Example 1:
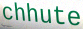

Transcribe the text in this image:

chhute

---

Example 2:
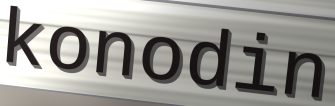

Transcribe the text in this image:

konodin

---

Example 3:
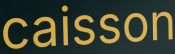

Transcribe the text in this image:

caisson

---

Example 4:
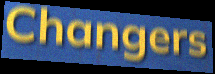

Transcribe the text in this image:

Changers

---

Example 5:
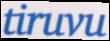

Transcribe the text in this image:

tiruvu